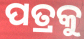
ପତ୍ରକୁ